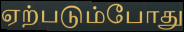
ஏற்படும்போது